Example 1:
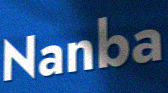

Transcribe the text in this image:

Nanba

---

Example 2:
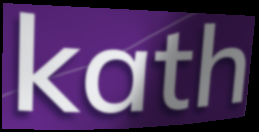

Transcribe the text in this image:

kath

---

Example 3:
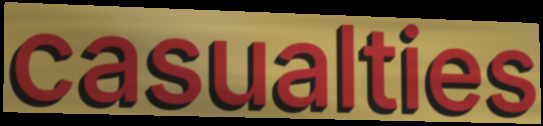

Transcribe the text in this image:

casualties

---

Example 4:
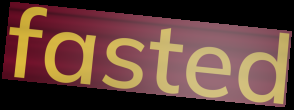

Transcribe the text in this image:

fasted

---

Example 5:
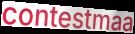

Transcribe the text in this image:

contestmaa